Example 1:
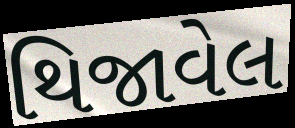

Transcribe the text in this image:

થિજાવેલ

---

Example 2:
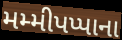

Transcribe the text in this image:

મમ્મીપપ્પાના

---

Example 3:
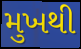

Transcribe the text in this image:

મુખથી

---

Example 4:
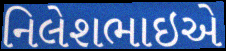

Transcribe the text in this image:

નિલેશભાઇએ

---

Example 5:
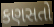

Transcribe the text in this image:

કણસતો